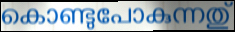
കൊണ്ടുപോകുന്നതു്